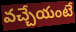
వచ్చేయంటే